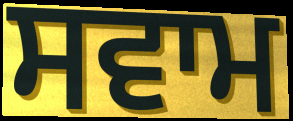
ਸਵਾਮ